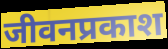
जीवनप्रकाश